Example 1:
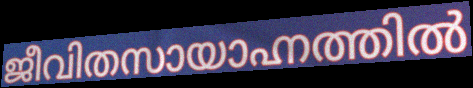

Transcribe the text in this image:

ജീവിതസായാഹ്നത്തിൽ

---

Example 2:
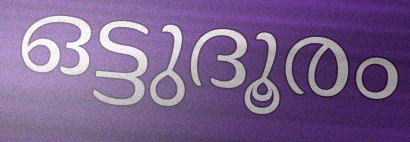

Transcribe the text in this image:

ഒട്ടുദൂരം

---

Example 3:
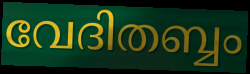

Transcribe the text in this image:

വേദിതബ്ബം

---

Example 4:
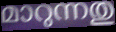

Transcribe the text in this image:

മാറുന്നതു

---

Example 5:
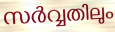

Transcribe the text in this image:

സർവ്വതിലും